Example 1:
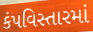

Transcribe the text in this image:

કંપવિસ્તારમાં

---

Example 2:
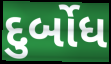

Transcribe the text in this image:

દુર્બોધ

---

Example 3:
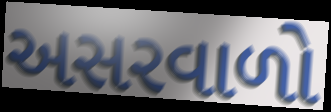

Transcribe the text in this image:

અસરવાળો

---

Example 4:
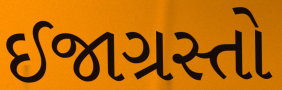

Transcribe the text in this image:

ઈજાગ્રસ્તો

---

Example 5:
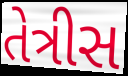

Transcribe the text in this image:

તેત્રીસ